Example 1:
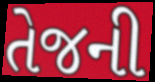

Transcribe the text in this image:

તેજની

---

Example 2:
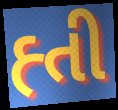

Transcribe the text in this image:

હ્તી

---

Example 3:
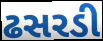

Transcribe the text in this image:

ઢસરડી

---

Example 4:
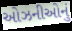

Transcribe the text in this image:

ઓઝનીઓનું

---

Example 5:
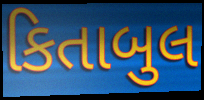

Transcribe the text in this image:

કિતાબુલ